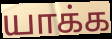
யாக்க